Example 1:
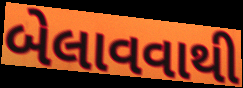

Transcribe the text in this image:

બેલાવવાથી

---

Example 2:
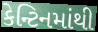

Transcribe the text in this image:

કેન્ટિનમાંથી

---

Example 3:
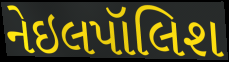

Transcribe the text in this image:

નેઇલપૉલિશ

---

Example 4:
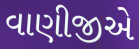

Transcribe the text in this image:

વાણીજીએ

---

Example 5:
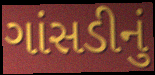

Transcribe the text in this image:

ગાંસડીનું